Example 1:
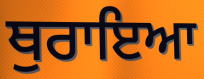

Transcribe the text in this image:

ਥੁਰਾਇਆ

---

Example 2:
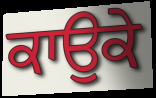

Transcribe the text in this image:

ਕਾਉਕੇ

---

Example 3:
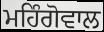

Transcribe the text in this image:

ਮਹਿੰਗੋਵਾਲ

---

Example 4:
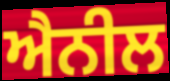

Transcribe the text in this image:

ਐਨੀਲ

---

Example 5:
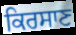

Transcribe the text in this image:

ਕਿਰਸਾਣ